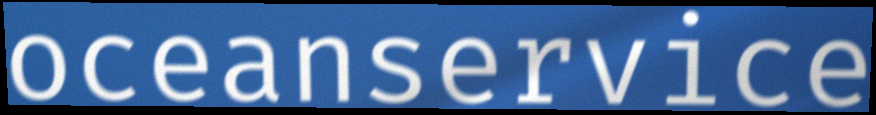
oceanservice